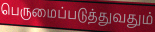
பெருமைப்படுத்துவதும்